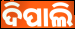
ଦିପାଲି